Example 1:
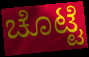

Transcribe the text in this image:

ಚೊಟ್ಟೆ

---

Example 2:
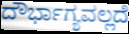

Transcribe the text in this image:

ದೌರ್ಭಾಗ್ಯವಲ್ಲದೆ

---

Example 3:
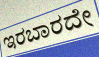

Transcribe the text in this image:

ಇರಬಾರದೇ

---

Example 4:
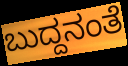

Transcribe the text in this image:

ಬುದ್ದನಂತೆ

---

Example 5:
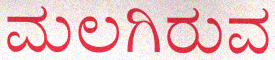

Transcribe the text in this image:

ಮಲಗಿರುವ